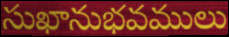
సుఖానుభవములు